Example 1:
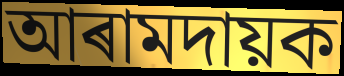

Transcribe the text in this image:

আৰামদায়ক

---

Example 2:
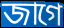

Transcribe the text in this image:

জাগে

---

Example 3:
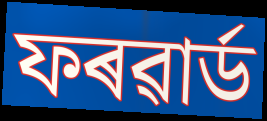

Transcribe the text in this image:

ফৰৱাৰ্ড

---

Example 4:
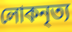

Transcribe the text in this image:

লোকনৃত্য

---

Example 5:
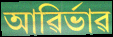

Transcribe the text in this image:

আৱিৰ্ভাৱ